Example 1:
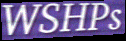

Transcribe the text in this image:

WSHPs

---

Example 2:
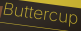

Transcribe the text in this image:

Buttercup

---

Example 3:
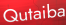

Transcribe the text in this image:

Qutaiba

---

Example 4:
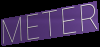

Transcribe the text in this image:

METER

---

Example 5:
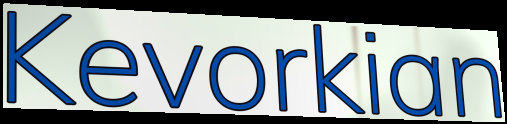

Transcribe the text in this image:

Kevorkian